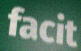
facit